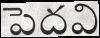
పెదవి